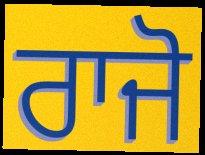
ਰਾਜੋ